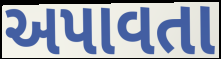
અપાવતા